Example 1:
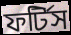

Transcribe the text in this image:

ফর্টিস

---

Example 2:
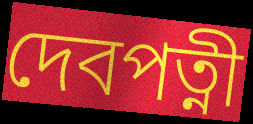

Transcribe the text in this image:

দেবপত্নী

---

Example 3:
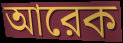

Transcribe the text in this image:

আরেক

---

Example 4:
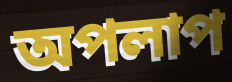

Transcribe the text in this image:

অপলাপ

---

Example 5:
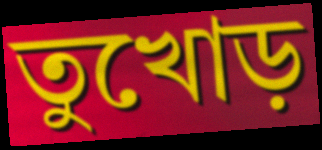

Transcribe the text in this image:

তুখোড়